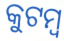
କୁଟମ୍ୱ